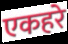
एकहरे